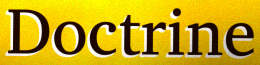
Doctrine